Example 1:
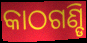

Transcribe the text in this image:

କାଠଗଣ୍ଡି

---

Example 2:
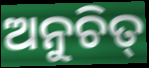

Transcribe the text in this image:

ଅନୁଚିତ୍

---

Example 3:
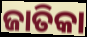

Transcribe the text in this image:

ଜାତିକା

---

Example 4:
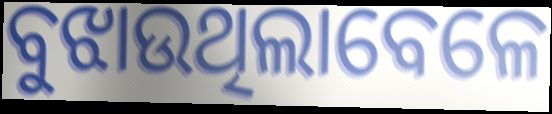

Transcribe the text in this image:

ବୁଝାଉଥିଲାବେଳେ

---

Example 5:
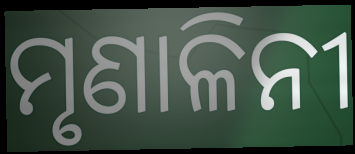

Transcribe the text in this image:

ମୃଣାଳିନୀ